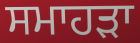
ਸਮਾਹੜਾ